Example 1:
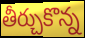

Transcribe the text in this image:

తీర్చుకొన్న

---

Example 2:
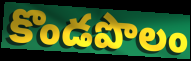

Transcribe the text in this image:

కొండపొలం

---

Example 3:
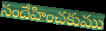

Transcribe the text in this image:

సందేహించకుము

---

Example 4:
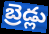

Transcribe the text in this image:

బ్రెడ్లు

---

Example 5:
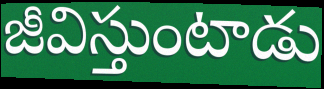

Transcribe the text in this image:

జీవిస్తుంటాడు